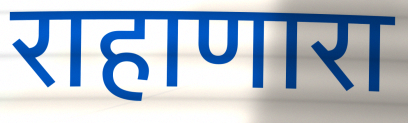
राहाणारा